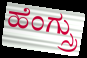
ಹೆಂಗ್ಸ್ರು